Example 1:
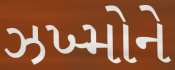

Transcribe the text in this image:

ઝખ્મોને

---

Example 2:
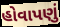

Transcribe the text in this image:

હોવાપણું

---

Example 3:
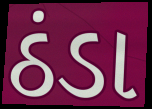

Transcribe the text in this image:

ઠંડા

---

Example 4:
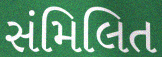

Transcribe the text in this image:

સંમિલિત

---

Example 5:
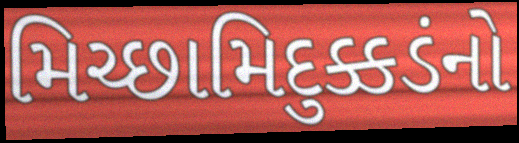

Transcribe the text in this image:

મિચ્છામિદુક્કડંનો